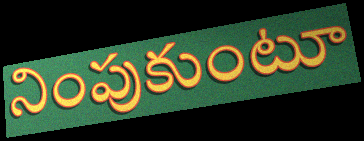
నింపుకుంటూ